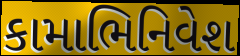
કામાભિનિવેશ